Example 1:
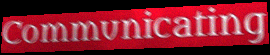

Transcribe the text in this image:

Communicating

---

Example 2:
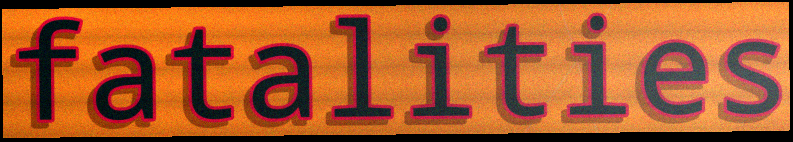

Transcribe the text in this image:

fatalities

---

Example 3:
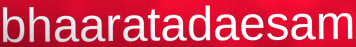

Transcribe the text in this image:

bhaaratadaesam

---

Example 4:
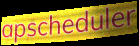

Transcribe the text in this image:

apscheduler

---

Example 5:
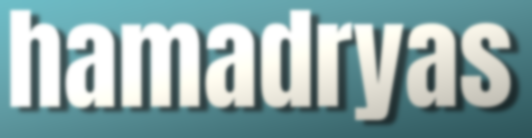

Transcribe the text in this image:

hamadryas